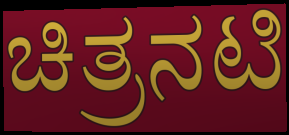
ಚಿತ್ರನಟಿ